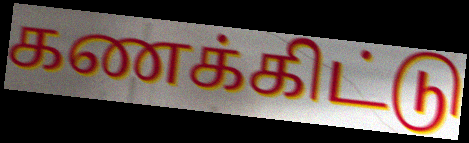
கணக்கிட்டு